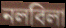
নলবিলা